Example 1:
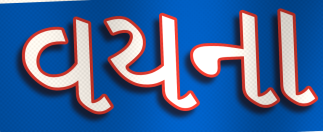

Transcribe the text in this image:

વયના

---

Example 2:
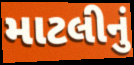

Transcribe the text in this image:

માટલીનું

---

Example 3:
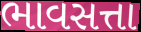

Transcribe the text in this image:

ભાવસત્તા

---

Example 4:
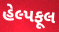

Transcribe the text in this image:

હેલ્પફૂલ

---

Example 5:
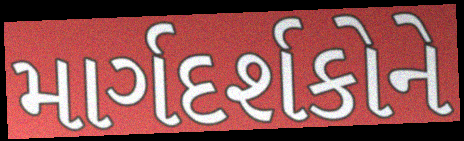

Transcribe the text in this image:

માર્ગદર્શકોને